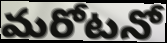
మరోటనో